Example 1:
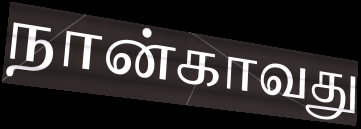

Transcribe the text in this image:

நான்காவது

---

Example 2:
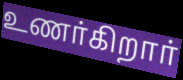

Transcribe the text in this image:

உணர்கிறார்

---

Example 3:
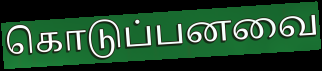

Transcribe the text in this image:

கொடுப்பனவை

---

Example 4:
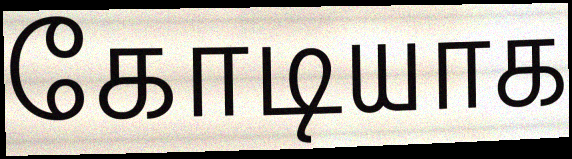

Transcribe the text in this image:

கோடியாக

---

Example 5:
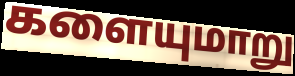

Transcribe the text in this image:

களையுமாறு